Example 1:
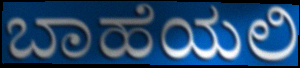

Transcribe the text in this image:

ಬಾಹೆಯಲಿ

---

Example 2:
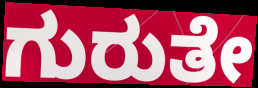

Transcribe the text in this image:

ಗುರುತೇ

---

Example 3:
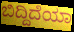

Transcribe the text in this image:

ಬಿದ್ದಿದೆಯಾ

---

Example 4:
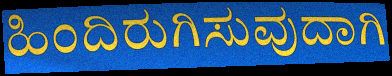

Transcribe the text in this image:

ಹಿಂದಿರುಗಿಸುವುದಾಗಿ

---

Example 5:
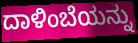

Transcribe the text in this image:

ದಾಳಿಂಬೆಯನ್ನು